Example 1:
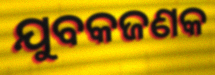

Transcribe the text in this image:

ଯୁବକଜଣକ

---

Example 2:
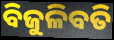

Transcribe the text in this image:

ବିଜୁଳିବତି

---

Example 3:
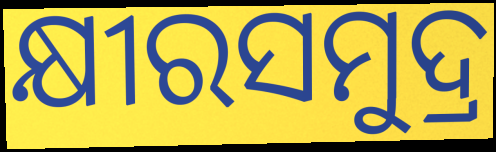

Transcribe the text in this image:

କ୍ଷୀରସମୁଦ୍ର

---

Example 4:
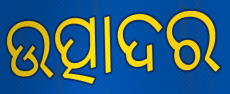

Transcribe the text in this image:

ଉତ୍ପାଦର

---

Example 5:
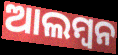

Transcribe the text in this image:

ଆଲମ୍ୱନ